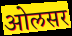
ओलसर